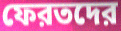
ফেরতদের